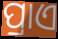
ପ୍ରାଏ